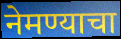
नेमण्याचा